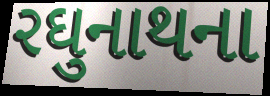
રઘુનાથના